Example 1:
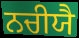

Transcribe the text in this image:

ਨਚੀਯੈ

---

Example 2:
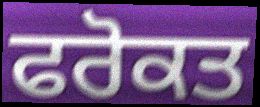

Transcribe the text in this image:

ਫਰੋਕਤ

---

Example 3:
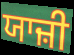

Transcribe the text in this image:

ਯਾਜ਼ੀ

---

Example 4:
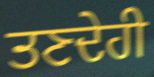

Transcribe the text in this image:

ਤਣਦੇਹੀ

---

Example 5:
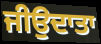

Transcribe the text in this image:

ਜੀਉਦਾਤਾ